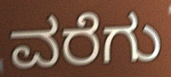
ವರೆಗು